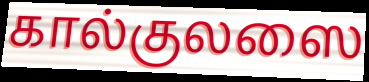
கால்குலஸை